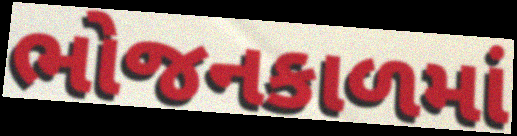
ભોજનકાળમાં